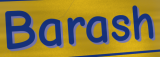
Barash